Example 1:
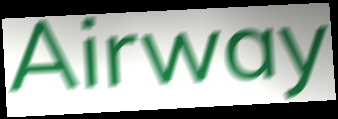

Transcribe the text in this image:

Airway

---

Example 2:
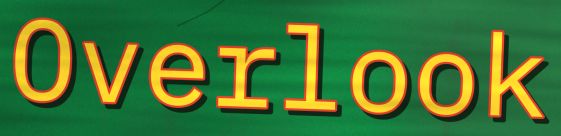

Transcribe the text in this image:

Overlook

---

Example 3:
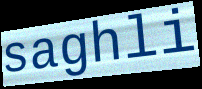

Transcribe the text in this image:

saghli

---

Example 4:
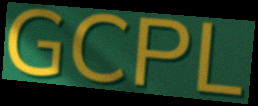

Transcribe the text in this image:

GCPL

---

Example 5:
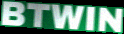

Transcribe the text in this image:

BTWIN